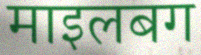
माइलबग